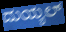
ದುಯ್ಯಲ್